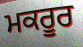
ਮਕਰੂਰ